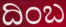
ದಿಂಬ